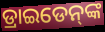
ଡ୍ରାଇଡେନ୍‌ଙ୍କ